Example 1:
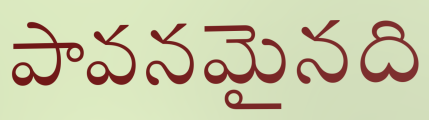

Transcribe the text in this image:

పావనమైనది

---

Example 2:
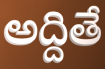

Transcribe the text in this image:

అద్దితే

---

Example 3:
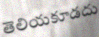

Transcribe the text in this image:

తెలియకూడదు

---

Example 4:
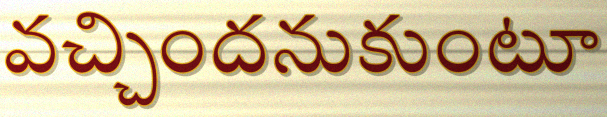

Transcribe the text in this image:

వచ్చిందనుకుంటూ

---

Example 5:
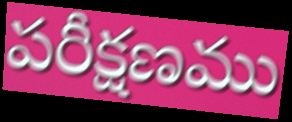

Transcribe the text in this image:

పరీక్షణము